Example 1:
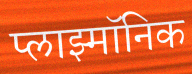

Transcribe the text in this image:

प्लाझ्मॉनिक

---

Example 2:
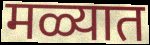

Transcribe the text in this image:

मळ्यात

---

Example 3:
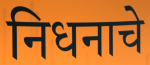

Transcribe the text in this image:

निधनाचे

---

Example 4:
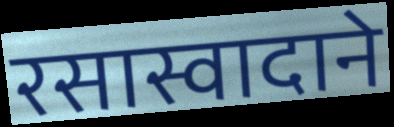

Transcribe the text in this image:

रसास्वादाने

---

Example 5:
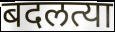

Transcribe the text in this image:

बदलत्या